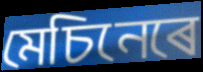
মেচিনেৰে